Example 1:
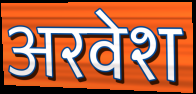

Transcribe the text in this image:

अरवेश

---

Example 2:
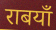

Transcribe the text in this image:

राबयाँ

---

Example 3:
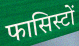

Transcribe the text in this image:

फासिस्टों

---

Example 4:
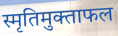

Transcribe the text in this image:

स्मृतिमुक्ताफल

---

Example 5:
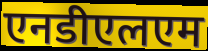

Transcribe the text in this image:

एनडीएलएम